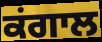
ਕਂਗਾਲ